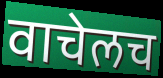
वाचेलच